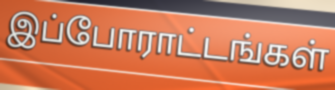
இப்போராட்டங்கள்